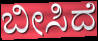
ಬೀಸಿದೆ